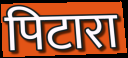
पिटारा